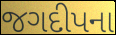
જગદીપના